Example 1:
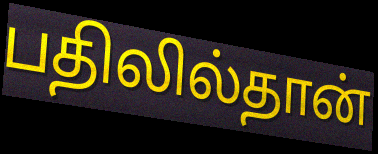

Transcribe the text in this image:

பதிலில்தான்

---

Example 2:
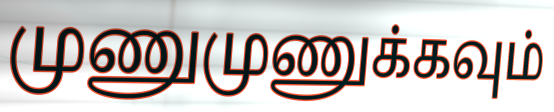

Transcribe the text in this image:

முணுமுணுக்கவும்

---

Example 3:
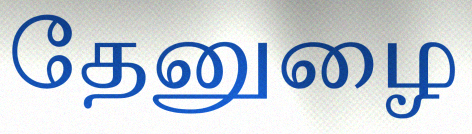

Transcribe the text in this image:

தேனுழை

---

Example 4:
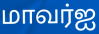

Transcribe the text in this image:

மாவர்ஐ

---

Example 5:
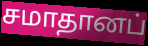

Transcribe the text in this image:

சமாதானப்